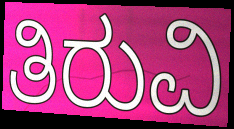
ತಿರುವಿ